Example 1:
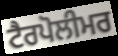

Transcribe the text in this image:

ਟੈਰਪੋਲੀਮਰ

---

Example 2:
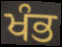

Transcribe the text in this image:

ਖੰਭ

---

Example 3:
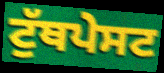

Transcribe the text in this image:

ਟੁੱਥਪੇਸਟ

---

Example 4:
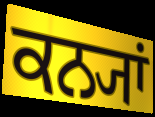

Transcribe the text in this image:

ਕਨ੍ਯਾਂ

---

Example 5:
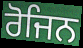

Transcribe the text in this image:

ਰੋਜਿਨ